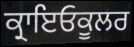
ਕ੍ਰਾਇਓਕੂਲਰ